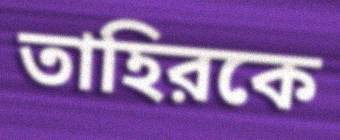
তাহিরকে